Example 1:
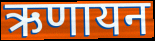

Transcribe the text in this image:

ऋणायन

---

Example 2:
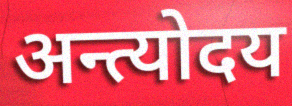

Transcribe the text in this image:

अन्त्योदय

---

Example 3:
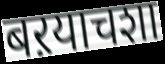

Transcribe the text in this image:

बऱयाचशा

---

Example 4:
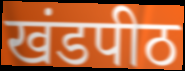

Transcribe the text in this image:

खंडपीठ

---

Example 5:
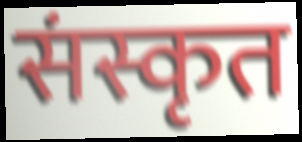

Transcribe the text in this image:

संस्‍कृत